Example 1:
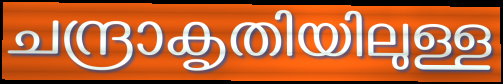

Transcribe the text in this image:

ചന്ദ്രാകൃതിയിലുള്ള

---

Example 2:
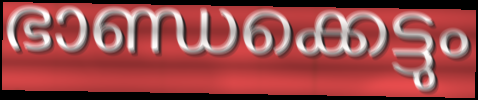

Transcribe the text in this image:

ഭാണ്ഡക്കെട്ടും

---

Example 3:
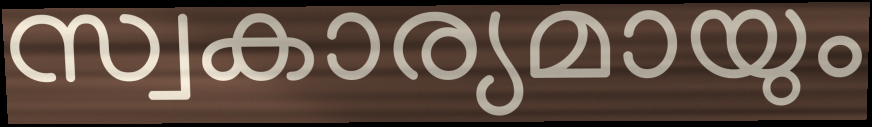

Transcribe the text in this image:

സ്വകാര്യമായും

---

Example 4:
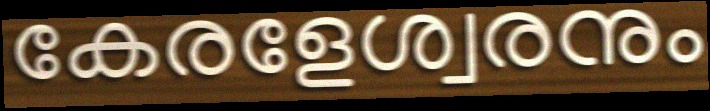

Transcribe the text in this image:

കേരളേശ്വരനും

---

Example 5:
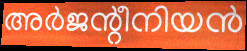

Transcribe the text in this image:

അർജന്റീനിയൻ